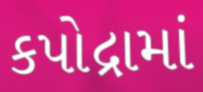
કપોદ્રામાં